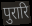
पुरारि